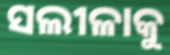
ସଲୀଳାକୁ